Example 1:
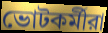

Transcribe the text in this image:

ভোটকর্মীরা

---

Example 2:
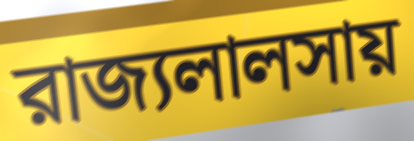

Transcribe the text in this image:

রাজ্যলালসায়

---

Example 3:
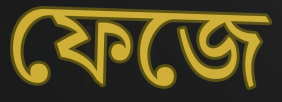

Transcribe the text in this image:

ফেজে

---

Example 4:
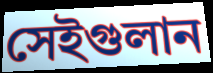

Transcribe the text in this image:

সেইগুলান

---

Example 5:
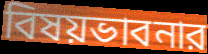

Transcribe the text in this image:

বিষয়ভাবনার